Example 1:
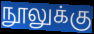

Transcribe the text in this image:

நூலுக்கு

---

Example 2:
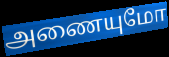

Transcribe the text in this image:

அணையுமோ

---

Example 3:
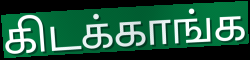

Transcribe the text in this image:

கிடக்காங்க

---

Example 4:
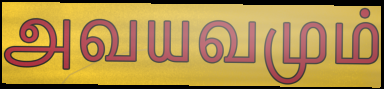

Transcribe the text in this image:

அவயவமும்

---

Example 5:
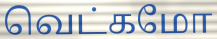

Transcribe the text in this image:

வெட்கமோ